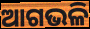
ଆଗଭଳି